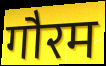
गौरम